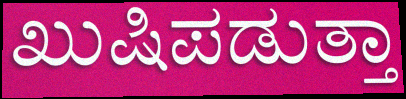
ಖುಷಿಪಡುತ್ತಾ